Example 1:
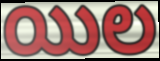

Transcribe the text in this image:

యిల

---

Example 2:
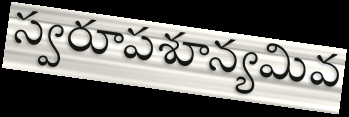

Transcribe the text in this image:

స్వరూపశూన్యమివ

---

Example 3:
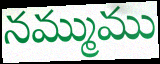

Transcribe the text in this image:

నమ్ముము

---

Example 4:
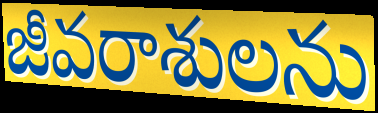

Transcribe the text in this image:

జీవరాశులను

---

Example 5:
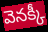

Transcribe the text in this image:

వెనక్కీ